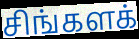
சிங்களக்